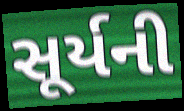
સૂર્યની